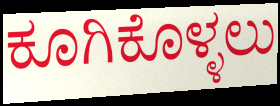
ಕೂಗಿಕೊಳ್ಳಲು